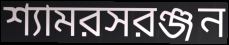
শ্যামরসরঞ্জন